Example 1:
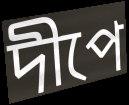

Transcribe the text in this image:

দীপে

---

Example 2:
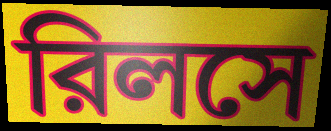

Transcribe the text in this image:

রিলসে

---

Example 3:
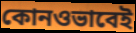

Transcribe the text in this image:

কোনওভাবেই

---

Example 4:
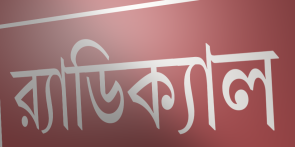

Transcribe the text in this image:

র‍্যাডিক্যাল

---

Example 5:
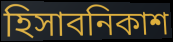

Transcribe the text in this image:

হিসাবনিকাশ